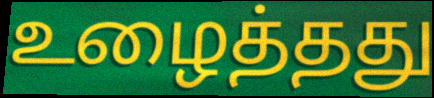
உழைத்தது